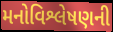
મનોવિશ્લેષણની